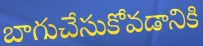
బాగుచేసుకోవడానికి